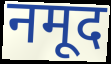
नमूद